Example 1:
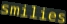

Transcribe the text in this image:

smilies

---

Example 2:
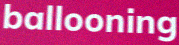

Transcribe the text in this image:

ballooning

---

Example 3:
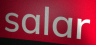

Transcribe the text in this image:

salar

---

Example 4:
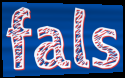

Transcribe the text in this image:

fals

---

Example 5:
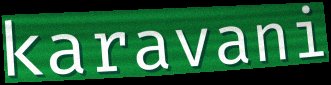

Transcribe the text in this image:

karavani